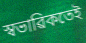
স্বভাৱিকতেই